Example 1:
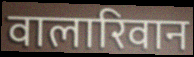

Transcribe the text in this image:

वालारिवान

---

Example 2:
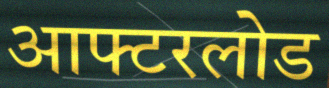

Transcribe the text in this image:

आफ्टरलोड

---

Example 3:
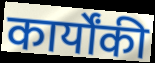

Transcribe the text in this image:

कार्योंकी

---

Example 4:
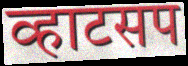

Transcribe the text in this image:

व्हाटसप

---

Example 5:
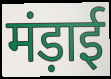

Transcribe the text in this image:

मंड़ाई